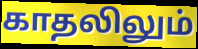
காதலிலும்